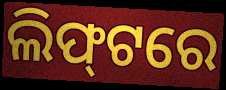
ଲିଫ୍‍ଟରେ